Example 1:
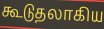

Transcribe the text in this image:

கூடுதலாகிய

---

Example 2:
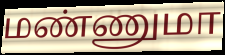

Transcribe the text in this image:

மண்ணுமா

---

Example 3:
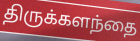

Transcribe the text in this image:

திருக்களந்தை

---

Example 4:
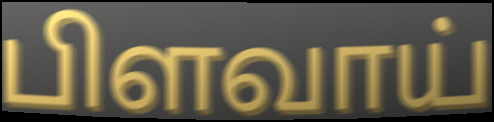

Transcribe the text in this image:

பிளவாய்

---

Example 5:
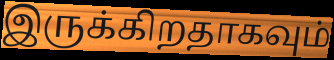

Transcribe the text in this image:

இருக்கிறதாகவும்